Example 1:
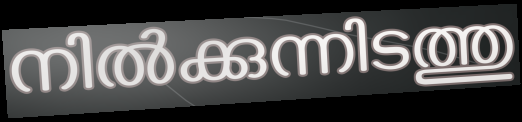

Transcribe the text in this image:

നിൽക്കുന്നിടത്തു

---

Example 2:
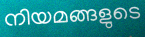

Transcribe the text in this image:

നിയമങ്ങളുടെ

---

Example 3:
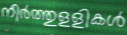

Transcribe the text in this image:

നീർത്തുളളികൾ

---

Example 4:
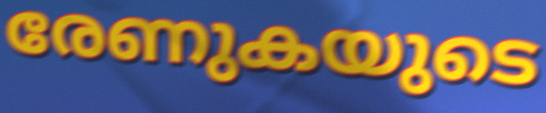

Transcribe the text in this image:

രേണുകയുടെ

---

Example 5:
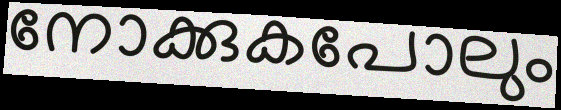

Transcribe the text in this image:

നോക്കുകപോലും